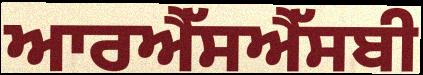
ਆਰਐੱਸਐੱਸਬੀ